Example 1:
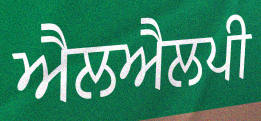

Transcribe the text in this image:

ਐਲਐਲਪੀ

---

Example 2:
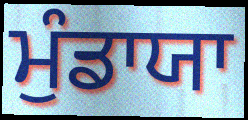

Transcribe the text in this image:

ਮੁੰਡਾਯਾ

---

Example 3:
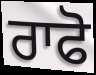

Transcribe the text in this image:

ਰਾਫੋ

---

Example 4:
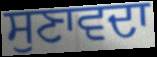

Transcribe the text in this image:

ਸੁਣਾਵਦਾ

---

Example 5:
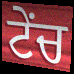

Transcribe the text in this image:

ਟੇਂਚ